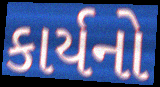
કાર્યનો